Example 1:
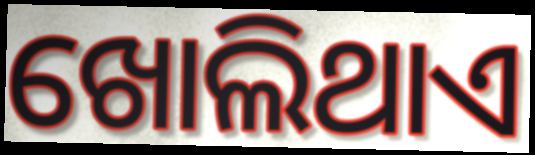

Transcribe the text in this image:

ଖୋଲିଥାଏ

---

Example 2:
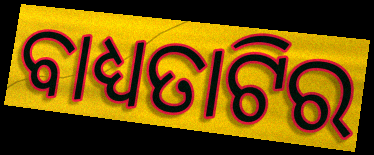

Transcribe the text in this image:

ବାଧ୍ୟତାଟିର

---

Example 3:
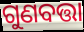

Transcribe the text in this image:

ଗୁଣବତ୍ତା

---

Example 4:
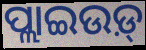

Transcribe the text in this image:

ପ୍ଲାଇଉଡ଼୍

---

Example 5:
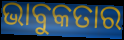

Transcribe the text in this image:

ଭାବୁକତାର